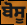
ਬੋਸੂ